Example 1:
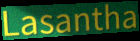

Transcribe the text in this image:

Lasantha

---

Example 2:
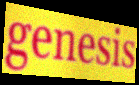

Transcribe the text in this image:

genesis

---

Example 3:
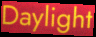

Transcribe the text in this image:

Daylight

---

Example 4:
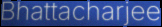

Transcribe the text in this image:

Bhattacharjee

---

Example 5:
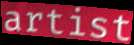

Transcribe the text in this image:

artist